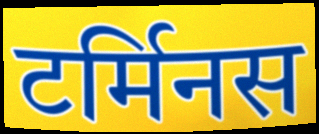
टर्मिनस